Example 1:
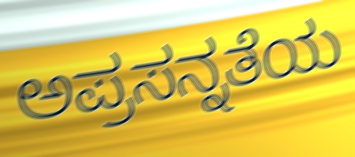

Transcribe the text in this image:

ಅಪ್ರಸನ್ನತೆಯ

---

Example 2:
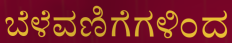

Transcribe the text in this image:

ಬೆಳೆವಣಿಗೆಗಳಿಂದ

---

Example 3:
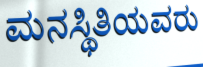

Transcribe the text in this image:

ಮನಸ್ಥಿತಿಯವರು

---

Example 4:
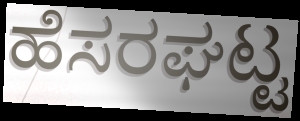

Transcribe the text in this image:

ಹೆಸರಘಟ್ಟ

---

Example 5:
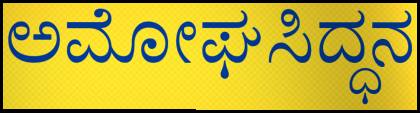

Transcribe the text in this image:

ಅಮೋಘಸಿದ್ಧನ